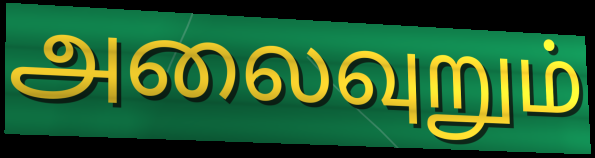
அலைவுறும்